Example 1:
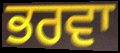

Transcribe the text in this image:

ਭਰਵਾ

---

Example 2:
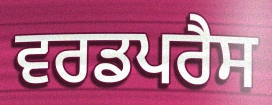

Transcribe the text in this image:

ਵਰਡਪਰੈਸ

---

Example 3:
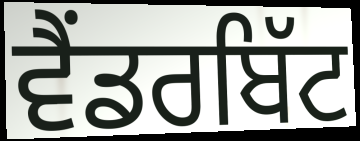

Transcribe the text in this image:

ਵੈਂਡਰਬਿੱਟ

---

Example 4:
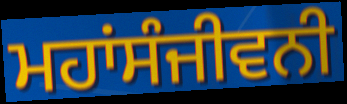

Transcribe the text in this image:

ਮਹਾਂਸੰਜੀਵਨੀ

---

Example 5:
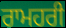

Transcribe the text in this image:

ਰਾਮਹਰੀ